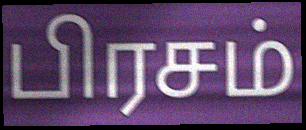
பிரசம்